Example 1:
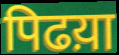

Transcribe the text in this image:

पिढय़ा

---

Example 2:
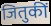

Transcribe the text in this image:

जितुकीं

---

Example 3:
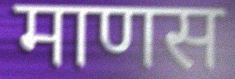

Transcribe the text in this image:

माणस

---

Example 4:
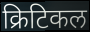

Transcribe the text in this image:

क्रिटिकल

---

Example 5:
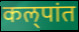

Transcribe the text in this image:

कल्पांत